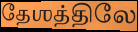
தேஶத்திலே